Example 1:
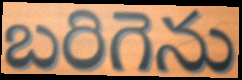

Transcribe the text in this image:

బరిగెను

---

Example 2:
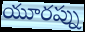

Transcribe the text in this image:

యూరప్ను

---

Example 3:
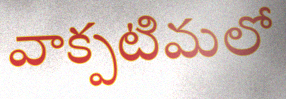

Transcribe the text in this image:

వాక్పటిమలో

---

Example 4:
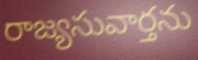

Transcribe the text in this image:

రాజ్యసువార్తను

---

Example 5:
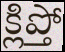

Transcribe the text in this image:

క్లిప్తో